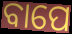
ବାପେ